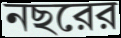
নছরের